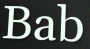
Bab